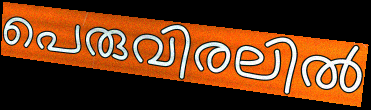
പെരുവിരലിൽ